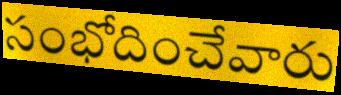
సంభోదించేవారు